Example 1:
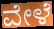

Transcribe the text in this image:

ವೇಳೆ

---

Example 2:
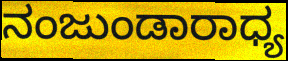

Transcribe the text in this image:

ನಂಜುಂಡಾರಾಧ್ಯ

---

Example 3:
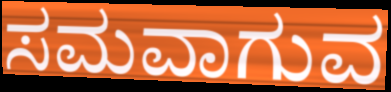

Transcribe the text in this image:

ಸಮವಾಗುವ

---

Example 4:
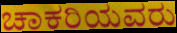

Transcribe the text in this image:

ಚಾಕರಿಯವರು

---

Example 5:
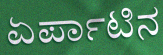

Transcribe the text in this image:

ಏರ್ಪಾಟಿನ